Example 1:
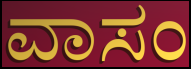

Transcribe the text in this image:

ವಾಸಂ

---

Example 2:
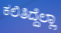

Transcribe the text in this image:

ಕಲಿತಿದ್ದೆಲ್ಲಾ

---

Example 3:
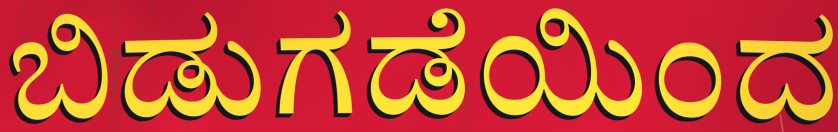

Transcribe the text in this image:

ಬಿಡುಗಡೆಯಿಂದ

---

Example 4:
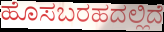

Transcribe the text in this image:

ಹೊಸಬರಹದಲ್ಲಿದೆ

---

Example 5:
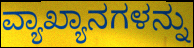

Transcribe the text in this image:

ವ್ಯಾಖ್ಯಾನಗಳನ್ನು